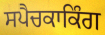
ਸਪੈਚਕਾਕਿੰਗ